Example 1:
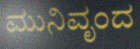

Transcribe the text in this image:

ಮುನಿವೃಂದ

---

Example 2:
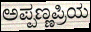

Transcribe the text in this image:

ಅಪ್ಪಣ್ಣಪ್ರಿಯ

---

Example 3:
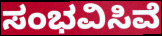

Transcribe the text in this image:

ಸಂಭವಿಸಿವೆ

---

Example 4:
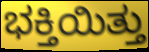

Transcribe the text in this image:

ಭಕ್ತಿಯಿತ್ತು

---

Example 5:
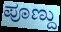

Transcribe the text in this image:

ಪೂಣ್ದು